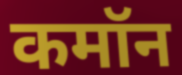
कमॉन